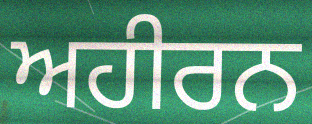
ਅਹੀਰਨ